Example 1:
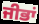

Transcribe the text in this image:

ਜੀਭਾਂ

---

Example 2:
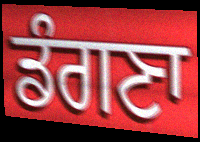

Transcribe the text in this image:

ਡੰਗਣਾ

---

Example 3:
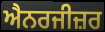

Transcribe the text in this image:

ਐਨਰਜੀਜ਼ਰ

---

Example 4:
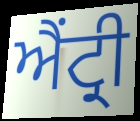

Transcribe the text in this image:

ਐਂਟ੍ਰੀ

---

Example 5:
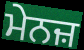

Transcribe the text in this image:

ਮੇਨਜ਼